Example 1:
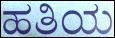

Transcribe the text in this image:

ಹತಿಯ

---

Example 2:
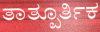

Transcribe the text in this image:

ತಾತ್ಪೂರ್ತಿಕ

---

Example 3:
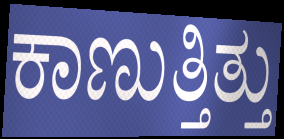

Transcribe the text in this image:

ಕಾಣುತ್ತಿತ್ತು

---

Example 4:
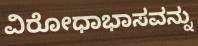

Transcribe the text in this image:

ವಿರೋಧಾಭಾಸವನ್ನು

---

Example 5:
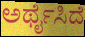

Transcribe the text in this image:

ಅರ್ಥೈಸಿದೆ